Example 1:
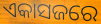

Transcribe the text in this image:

ଏକାସଜରେ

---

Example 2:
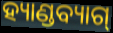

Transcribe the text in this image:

ହ୍ୟାଣ୍ଡବ୍ୟାଗ୍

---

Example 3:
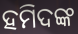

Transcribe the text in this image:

ହମିଦଙ୍କ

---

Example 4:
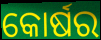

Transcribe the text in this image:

କୋର୍ଷର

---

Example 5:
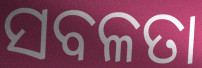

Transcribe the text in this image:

ସବଳତା